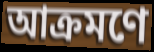
আক্রমণে